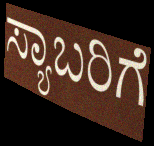
ಸ್ಯಾಬರಿಗೆ